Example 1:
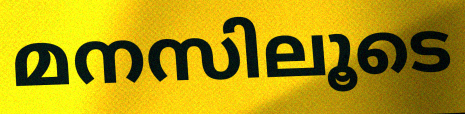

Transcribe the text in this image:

മനസിലൂടെ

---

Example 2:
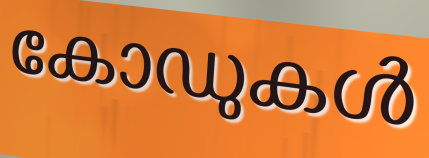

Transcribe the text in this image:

കോഡുകൾ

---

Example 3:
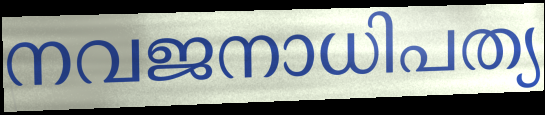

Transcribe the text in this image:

നവജനാധിപത്യ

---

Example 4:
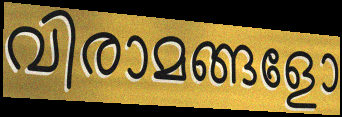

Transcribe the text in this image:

വിരാമങ്ങളോ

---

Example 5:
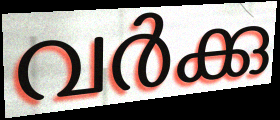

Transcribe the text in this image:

വർക്കു